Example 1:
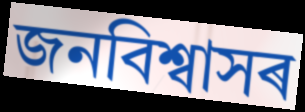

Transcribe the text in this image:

জনবিশ্বাসৰ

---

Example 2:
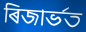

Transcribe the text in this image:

ৰিজাৰ্ভত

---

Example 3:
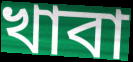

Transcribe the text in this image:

খাবা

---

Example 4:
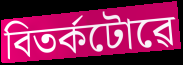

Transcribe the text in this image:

বিতৰ্কটোৱে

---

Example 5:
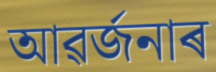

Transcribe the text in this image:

আৱৰ্জনাৰ